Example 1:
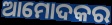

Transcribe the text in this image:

ଆମୋଦକର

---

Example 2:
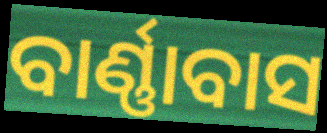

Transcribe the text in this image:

ବାର୍ଣ୍ଣାବାସ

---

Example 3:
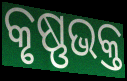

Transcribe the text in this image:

କୃଷ୍ଣଭକ୍ତ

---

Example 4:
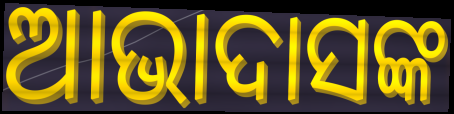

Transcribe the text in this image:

ଆଭାଦାସଙ୍କ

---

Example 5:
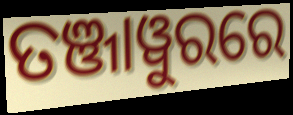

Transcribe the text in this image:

ତଞ୍ଜାୱୁରରେ